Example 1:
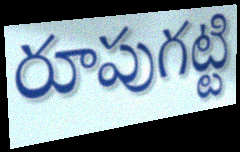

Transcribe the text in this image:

రూపుగట్టి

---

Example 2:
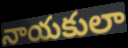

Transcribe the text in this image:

నాయకులా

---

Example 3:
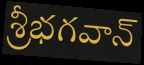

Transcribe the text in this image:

శ్రీభగవాన్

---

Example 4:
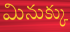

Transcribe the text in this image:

మినుక్కు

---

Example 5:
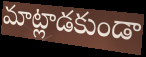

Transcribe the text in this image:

మాట్లాడకుండా